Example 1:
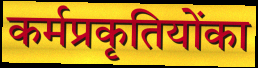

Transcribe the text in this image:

कर्मप्रकृतियोंका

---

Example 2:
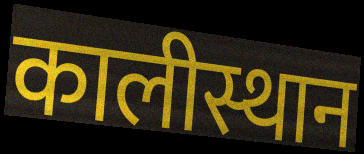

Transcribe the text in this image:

कालीस्थान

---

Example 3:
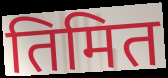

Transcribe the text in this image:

तिमित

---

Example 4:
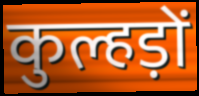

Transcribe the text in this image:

कुल्हड़ों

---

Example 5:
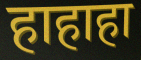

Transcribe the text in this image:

हाहाहा